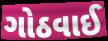
ગોઠવાઈ